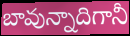
బావున్నాదిగానీ